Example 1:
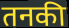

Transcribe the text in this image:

तनकी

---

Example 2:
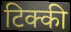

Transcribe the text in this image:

टिक्की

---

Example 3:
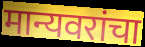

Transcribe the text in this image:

मान्यवरांचा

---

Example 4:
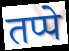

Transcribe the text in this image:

तप्पे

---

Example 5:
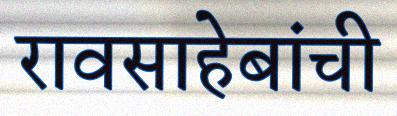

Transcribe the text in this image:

रावसाहेबांची